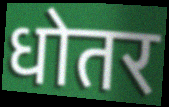
धोतर